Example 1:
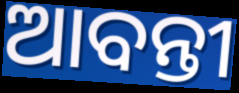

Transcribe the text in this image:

ଆବନ୍ତୀ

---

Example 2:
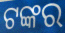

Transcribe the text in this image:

ଟଙ୍କର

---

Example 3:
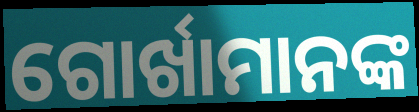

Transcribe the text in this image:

ଗୋର୍ଖାମାନଙ୍କ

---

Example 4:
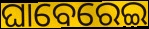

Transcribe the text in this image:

ଘାବେରେଇ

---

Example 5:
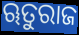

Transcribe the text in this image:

ୠତୁରାଜ